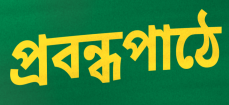
প্রবন্ধপাঠে